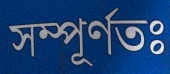
সম্পূর্ণতঃ